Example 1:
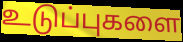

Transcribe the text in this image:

உடுப்புகளை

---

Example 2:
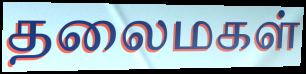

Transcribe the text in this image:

தலைமகள்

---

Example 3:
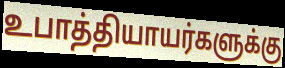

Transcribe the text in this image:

உபாத்தியாயர்களுக்கு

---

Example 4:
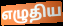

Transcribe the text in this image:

எழுதிய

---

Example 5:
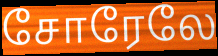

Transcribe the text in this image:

சோரேலே